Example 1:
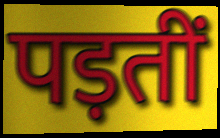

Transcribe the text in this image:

पड़तीं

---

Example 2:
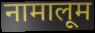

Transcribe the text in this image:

नामालूम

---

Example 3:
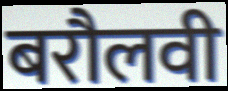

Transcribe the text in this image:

बरौलवी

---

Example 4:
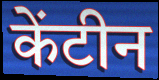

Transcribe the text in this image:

केंटीन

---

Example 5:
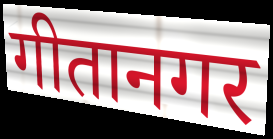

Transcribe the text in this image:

गीतानगर